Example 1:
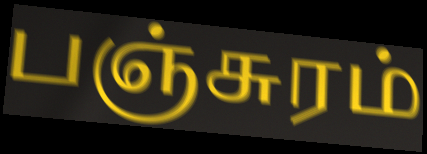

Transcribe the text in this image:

பஞ்சுரம்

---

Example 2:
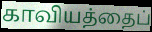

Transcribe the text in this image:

காவியத்தைப்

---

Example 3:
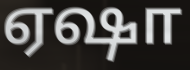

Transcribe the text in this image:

ஏஷா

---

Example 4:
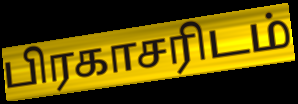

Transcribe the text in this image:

பிரகாசரிடம்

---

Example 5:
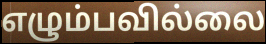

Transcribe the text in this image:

எழும்பவில்லை